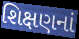
શિક્ષણનાં